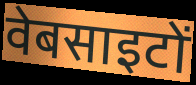
वेबसाइटों